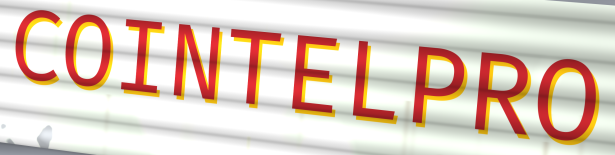
COINTELPRO